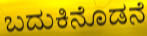
ಬದುಕಿನೊಡನೆ